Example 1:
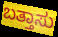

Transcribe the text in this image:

ಬತ್ತಾಸು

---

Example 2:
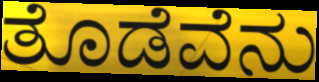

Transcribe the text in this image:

ತೊಡೆವೆನು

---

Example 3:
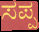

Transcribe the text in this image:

ಸಪ್ಪ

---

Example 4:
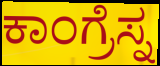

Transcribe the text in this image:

ಕಾಂಗ್ರೆಸ್ನ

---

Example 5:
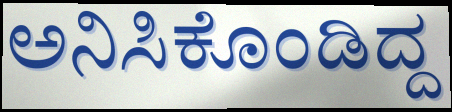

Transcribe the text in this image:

ಅನಿಸಿಕೊಂಡಿದ್ದ